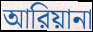
আরিয়ানা